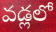
వడ్లలో